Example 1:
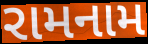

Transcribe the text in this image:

રામનામ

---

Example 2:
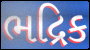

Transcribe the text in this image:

ભદ્રિક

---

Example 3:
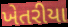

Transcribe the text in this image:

ખેતરીયા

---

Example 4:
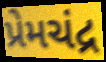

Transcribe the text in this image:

પ્રેમચંદ્ર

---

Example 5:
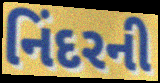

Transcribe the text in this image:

નિંદરની